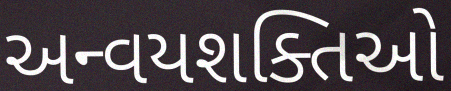
અન્વયશક્તિઓ